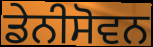
ਡੇਨੀਸੋਵਨ